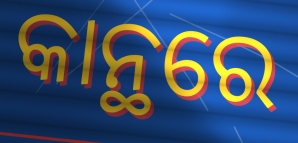
କାନ୍ଥରେ